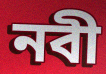
নবী